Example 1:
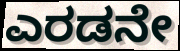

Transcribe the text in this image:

ಎರಡನೇ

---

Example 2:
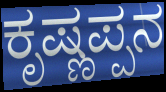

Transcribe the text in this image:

ಕೃಷ್ಣಪ್ಪನ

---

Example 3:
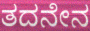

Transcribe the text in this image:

ತದನೇನ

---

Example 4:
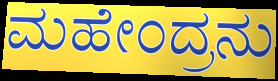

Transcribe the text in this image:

ಮಹೇಂದ್ರನು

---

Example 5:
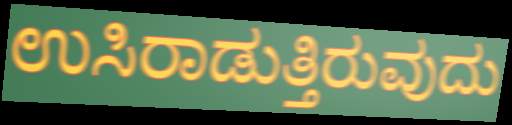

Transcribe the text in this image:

ಉಸಿರಾಡುತ್ತಿರುವುದು